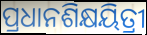
ପ୍ରଧାନଶିକ୍ଷୟିତ୍ରୀ